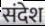
संदेश